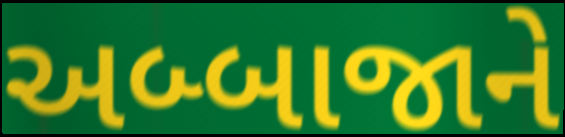
અબ્બાજાને